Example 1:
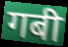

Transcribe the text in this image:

गबी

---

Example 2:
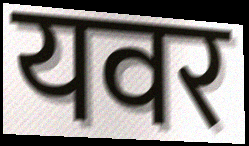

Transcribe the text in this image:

यवर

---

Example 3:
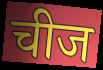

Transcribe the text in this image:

चीज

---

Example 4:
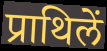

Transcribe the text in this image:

प्राथिलें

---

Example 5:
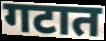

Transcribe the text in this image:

गटात